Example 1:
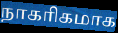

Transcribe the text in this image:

நாகரிகமாக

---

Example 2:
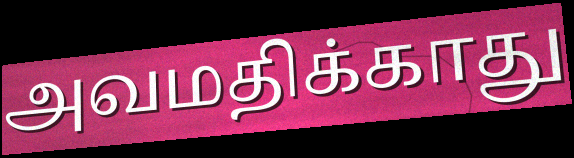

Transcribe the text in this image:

அவமதிக்காது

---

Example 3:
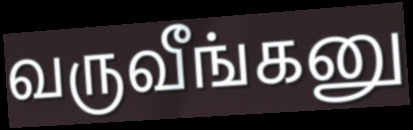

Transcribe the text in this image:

வருவீங்கனு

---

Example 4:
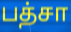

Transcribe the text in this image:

பத்சா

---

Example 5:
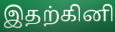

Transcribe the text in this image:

இதற்கினி